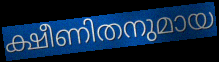
ക്ഷീണിതനുമായ